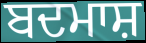
ਬਦਮਾਸ਼